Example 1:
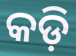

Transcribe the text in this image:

କଡ଼ି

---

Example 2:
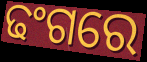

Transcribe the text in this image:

ଢଂଗରେ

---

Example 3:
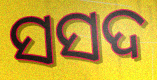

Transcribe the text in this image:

ସସଦ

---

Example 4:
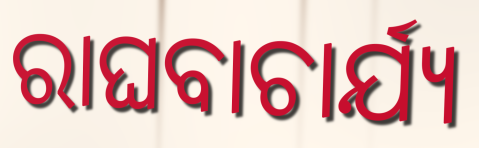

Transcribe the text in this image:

ରାଘବାଚାର୍ଯ୍ୟ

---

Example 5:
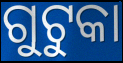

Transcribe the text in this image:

ଗୁଟୁକା